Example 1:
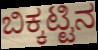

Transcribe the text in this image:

ಬಿಕ್ಕಟ್ಟಿನ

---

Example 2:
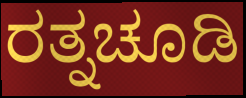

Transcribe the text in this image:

ರತ್ನಚೂಡಿ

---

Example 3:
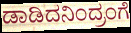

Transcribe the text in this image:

ಡಾಡಿದನಿಂದ್ರಂಗೆ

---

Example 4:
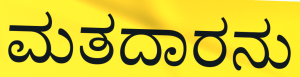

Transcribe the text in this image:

ಮತದಾರನು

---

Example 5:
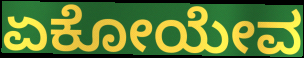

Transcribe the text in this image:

ಏಕೋಯೇವ